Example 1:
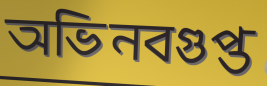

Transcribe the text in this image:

অভিনবগুপ্ত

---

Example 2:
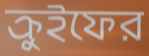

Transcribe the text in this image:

ক্রুইফের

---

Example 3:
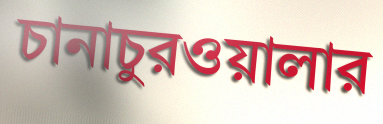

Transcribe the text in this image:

চানাচুরওয়ালার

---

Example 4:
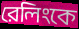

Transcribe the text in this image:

রেলিংকে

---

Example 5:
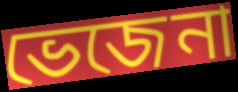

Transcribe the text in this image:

ভেজেনা